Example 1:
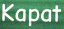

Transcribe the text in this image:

Kapat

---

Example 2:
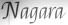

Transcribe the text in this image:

Nagara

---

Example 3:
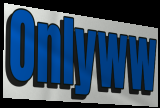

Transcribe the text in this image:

Onlyww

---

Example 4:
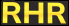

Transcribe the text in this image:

RHR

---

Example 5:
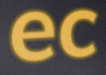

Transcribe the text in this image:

ec